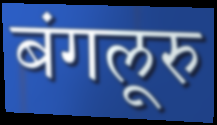
बंगलूरु